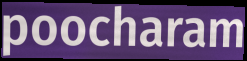
poocharam